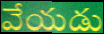
వేయడు